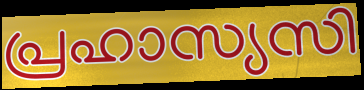
പ്രഹാസ്യസി